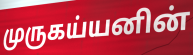
முருகய்யனின்